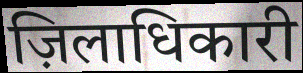
ज़िलाधिकारी